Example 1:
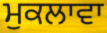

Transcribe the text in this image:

ਮੁਕਲਾਵਾ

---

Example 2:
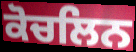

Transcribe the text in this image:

ਕੋਚਲਿਨ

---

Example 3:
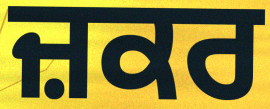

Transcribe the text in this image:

ਜ਼ਕਰ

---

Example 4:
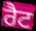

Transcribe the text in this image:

ਰੈਟ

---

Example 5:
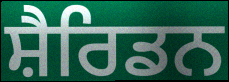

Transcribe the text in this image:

ਸ਼ੈਰਿਡਨ